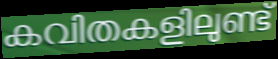
കവിതകളിലുണ്ട്